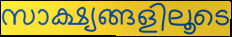
സാക്ഷ്യങ്ങളിലൂടെ